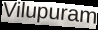
Vilupuram